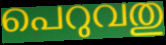
പെറുവതു